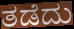
ತಡೆದು